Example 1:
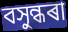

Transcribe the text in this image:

বসুন্ধৰা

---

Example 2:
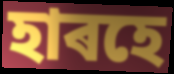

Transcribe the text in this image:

হাৰহে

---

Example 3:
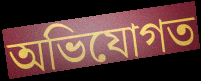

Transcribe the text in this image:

অভিযোগত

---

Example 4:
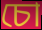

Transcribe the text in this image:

চো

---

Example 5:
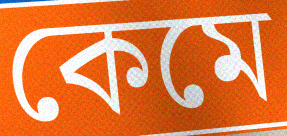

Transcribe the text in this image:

কেমে